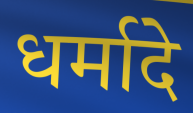
धर्मादे